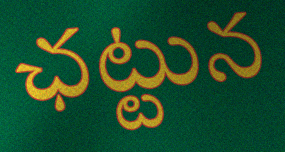
ఛట్టున